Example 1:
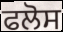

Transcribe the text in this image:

ਫਲੋਸ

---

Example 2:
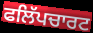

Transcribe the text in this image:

ਫਲਿੱਪਚਾਰਟ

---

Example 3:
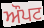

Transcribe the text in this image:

ਔਪਟ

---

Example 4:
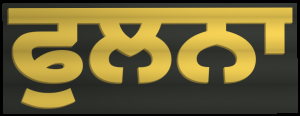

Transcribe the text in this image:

ਫੁਲਨਾ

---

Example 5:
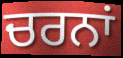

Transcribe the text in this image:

ਚਰਨਾਂ